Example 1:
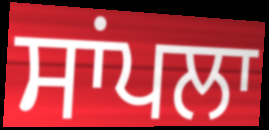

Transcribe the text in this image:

ਸਾਂਪਲਾ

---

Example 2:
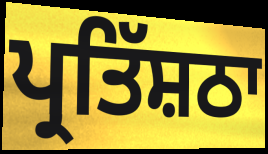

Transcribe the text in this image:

ਪ੍ਰਤਿੱਸ਼ਠਾ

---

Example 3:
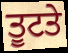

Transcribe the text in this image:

ਤੂਟਤੇ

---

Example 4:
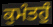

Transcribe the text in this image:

ਕੁਮੰਤਹੁੰ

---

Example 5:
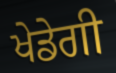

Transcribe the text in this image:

ਖੇਡੇਗੀ